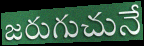
జరుగుచునే